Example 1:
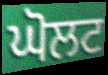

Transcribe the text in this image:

ਘੋਲਟ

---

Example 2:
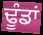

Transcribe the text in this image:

ਢੂੰਡਾਂ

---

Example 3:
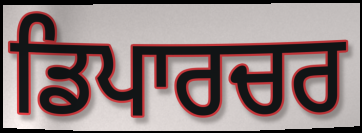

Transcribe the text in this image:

ਡਿਪਾਰਚਰ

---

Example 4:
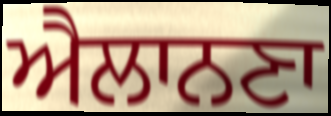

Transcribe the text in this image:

ਐਲਾਨਣਾ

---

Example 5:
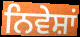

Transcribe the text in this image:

ਨਿਵੇਸ਼ਾਂ